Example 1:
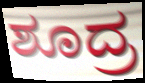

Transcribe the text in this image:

ಶೂದ್ರ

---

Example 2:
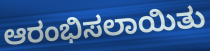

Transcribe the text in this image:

ಆರಂಭಿಸಲಾಯಿತು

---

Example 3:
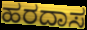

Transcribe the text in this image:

ಹರದಾಸ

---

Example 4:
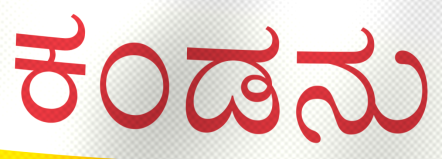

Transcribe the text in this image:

ಕಂಡನು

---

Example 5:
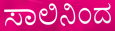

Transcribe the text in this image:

ಸಾಲಿನಿಂದ